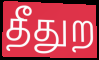
தீதுற